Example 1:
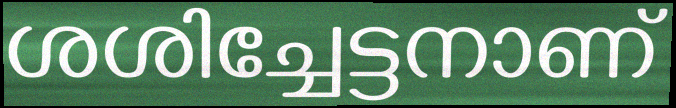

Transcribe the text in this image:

ശശിച്ചേട്ടനാണ്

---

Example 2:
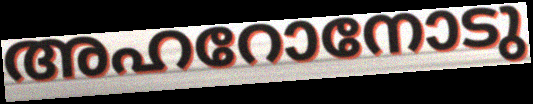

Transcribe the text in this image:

അഹറോനോടു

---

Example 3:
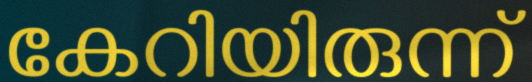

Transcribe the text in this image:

കേറിയിരുന്ന്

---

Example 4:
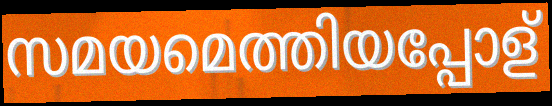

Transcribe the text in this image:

സമയമെത്തിയപ്പോള്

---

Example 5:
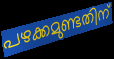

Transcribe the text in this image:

പഴക്കമുണ്ടതിന്